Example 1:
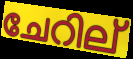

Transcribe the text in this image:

ചേറില്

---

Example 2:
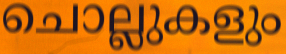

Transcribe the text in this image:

ചൊല്ലുകളും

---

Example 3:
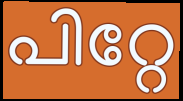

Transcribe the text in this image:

പിറ്റേ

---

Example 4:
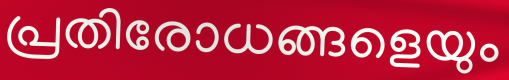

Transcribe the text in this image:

പ്രതിരോധങ്ങളെയും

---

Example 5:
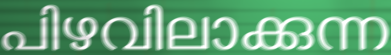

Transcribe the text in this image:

പിഴവിലാക്കുന്ന